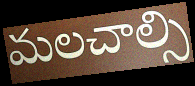
మలచాల్సి